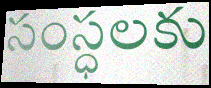
సంస్ధలకు